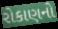
રોકાણનો